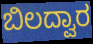
ಬಿಲದ್ವಾರ